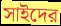
সাইদের